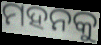
ମହନକୁ